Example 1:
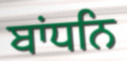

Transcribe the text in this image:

ਬਾਂਧਨਿ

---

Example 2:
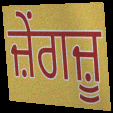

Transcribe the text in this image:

ਜ਼ੇਂਗਜ਼ੂ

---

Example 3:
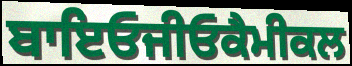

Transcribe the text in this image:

ਬਾਇਓਜੀਓਕੈਮੀਕਲ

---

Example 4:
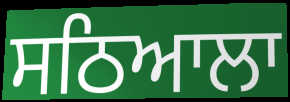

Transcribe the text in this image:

ਸਠਿਆਲਾ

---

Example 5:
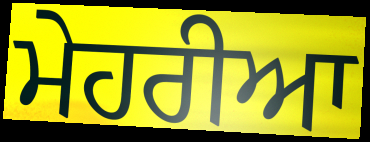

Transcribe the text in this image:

ਮੇਹਰੀਆ